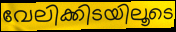
വേലിക്കിടയിലൂടെ